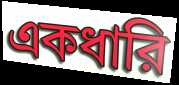
একধারি